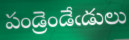
పండ్రెండేఁడులు